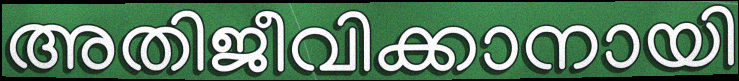
അതിജീവിക്കാനായി